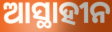
ଆସ୍ଥାହୀନ